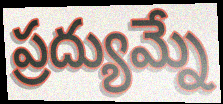
ప్రద్యుమ్నే